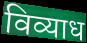
विव्याध